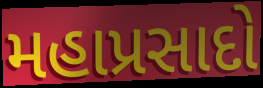
મહાપ્રસાદો